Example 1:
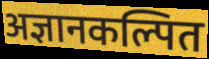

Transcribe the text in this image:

अज्ञानकल्पित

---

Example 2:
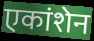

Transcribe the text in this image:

एकांशेन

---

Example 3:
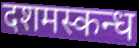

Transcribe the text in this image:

दशमस्कन्ध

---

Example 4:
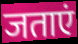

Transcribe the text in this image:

जताएं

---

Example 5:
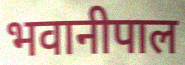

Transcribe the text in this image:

भवानीपाल